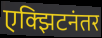
एक्झिटनंतर